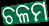
ଚଳମ